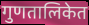
गुणतालिकेत